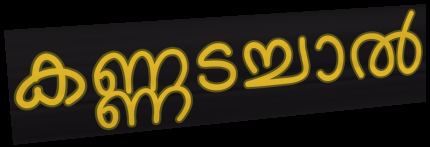
കണ്ണടച്ചാൽ